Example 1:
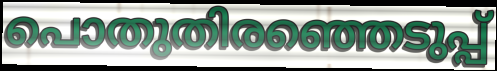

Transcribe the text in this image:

പൊതുതിരഞ്ഞെടുപ്പ്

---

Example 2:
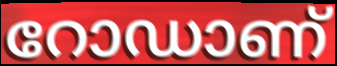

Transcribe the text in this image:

റോഡാണ്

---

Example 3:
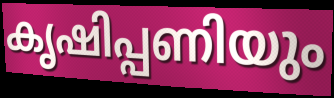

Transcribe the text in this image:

കൃഷിപ്പണിയും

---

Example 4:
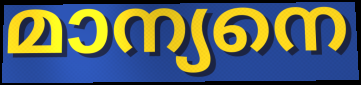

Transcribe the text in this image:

മാന്യനെ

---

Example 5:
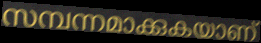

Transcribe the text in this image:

സമ്പന്നമാക്കുകയാണ്